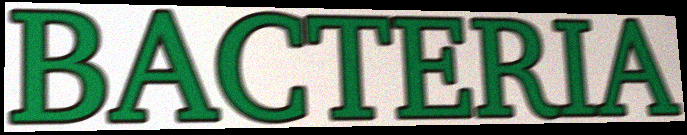
BACTERIA